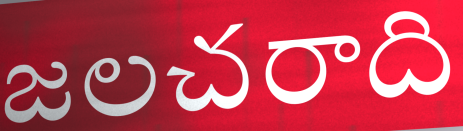
జలచరాది